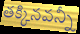
తక్కినవన్నీ